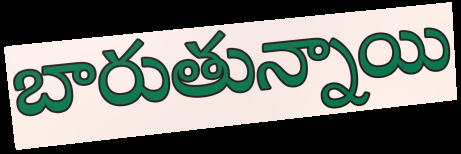
బారుతున్నాయి